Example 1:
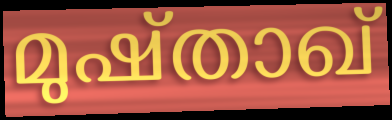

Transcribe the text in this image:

മുഷ്താഖ്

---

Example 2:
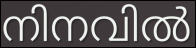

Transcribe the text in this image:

നിനവിൽ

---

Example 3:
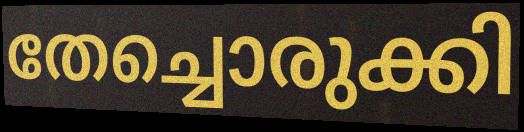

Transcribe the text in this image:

തേച്ചൊരുക്കി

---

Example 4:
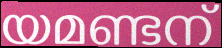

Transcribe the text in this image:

യമണ്ടന്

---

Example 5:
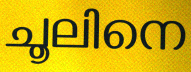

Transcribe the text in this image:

ചൂലിനെ